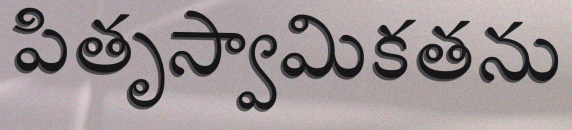
పితృస్వామికతను